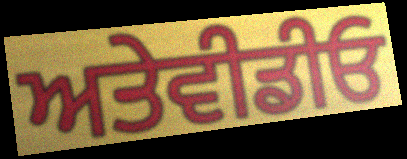
ਅਤੇਵੀਡੀਓ